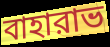
বাহারাভ